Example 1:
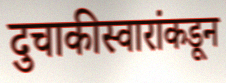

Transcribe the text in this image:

दुचाकीस्वारांकडून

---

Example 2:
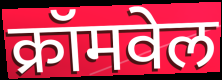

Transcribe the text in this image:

क्रॉमवेल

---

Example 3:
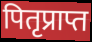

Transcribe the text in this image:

पितृप्राप्त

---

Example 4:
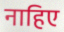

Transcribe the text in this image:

नाहिए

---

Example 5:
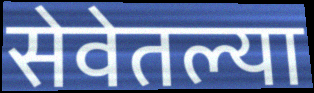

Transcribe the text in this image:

सेवेतल्या